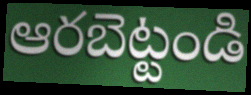
ఆరబెట్టండి